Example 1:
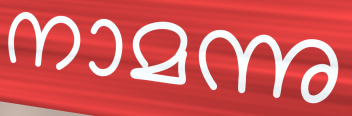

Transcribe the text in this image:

നാമന്നു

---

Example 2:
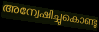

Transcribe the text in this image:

അന്വേഷിച്ചുകൊണ്ടു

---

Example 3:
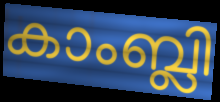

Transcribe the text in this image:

കാംബ്ലി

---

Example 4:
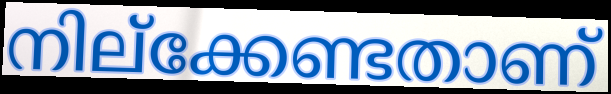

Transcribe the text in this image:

നില്ക്കേണ്ടതാണ്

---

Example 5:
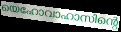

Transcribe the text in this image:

യെഹോവാഹാസിന്റെ